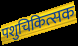
पशुचिकित्सक